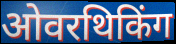
ओवरथिकिंग